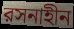
রসনাহীন